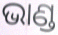
ଭାଣ୍ଡ